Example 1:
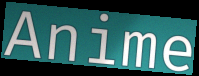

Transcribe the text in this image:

Anime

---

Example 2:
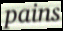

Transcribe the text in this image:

pains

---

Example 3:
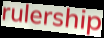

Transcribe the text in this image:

rulership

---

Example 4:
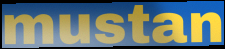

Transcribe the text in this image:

mustan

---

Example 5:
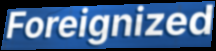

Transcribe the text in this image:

Foreignized